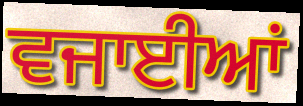
ਵਜਾਈਆਂ